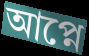
আপ্নে